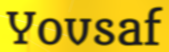
Yousaf